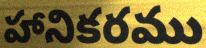
హానికరము